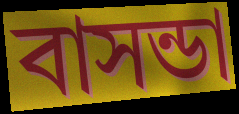
বাসন্ডা